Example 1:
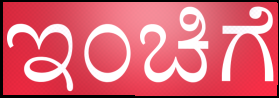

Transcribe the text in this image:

ಇಂಚಿಗೆ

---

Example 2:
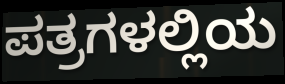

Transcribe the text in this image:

ಪತ್ರಗಳಲ್ಲಿಯ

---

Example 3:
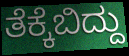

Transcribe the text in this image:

ತೆಕ್ಕೆಬಿದ್ದು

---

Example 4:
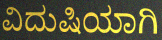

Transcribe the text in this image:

ವಿದುಷಿಯಾಗಿ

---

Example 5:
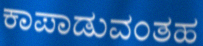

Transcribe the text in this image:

ಕಾಪಾಡುವಂತಹ